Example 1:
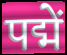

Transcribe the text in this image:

पद्में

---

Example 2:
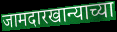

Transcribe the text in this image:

जामदारखान्याच्या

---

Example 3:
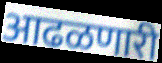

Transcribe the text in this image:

आढळणारी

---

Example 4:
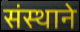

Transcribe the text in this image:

संस्थाने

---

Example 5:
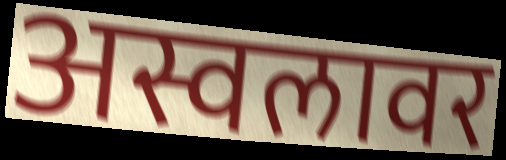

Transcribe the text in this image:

अस्वलावर